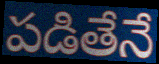
పడితేనే